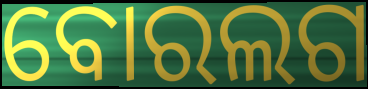
ବୋରଲଗ